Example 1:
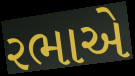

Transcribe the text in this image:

રભાએ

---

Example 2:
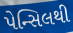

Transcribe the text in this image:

પેન્સિલથી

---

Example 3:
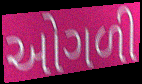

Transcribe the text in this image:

ઓગળી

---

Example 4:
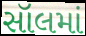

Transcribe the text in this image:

સૉલમાં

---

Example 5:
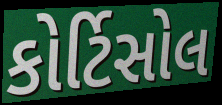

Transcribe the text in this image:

કોર્ટિસોલ